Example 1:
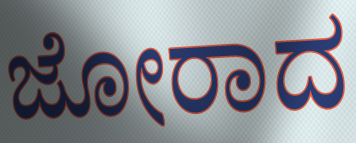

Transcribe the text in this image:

ಜೋರಾದ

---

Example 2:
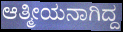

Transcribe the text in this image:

ಆತ್ಮೀಯನಾಗಿದ್ದ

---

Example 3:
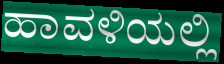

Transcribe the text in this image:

ಹಾವಳಿಯಲ್ಲಿ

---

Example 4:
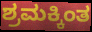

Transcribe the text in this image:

ಶ್ರಮಕ್ಕಿಂತ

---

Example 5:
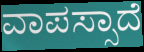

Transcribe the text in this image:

ವಾಪಸ್ಸಾದೆ